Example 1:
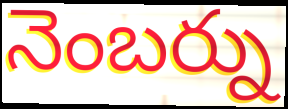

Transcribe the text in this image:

నెంబర్ను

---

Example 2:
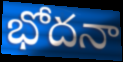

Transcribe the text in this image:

భోదనా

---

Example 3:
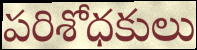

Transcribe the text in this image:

పరిశోధకులు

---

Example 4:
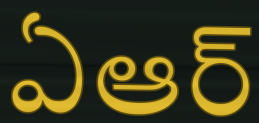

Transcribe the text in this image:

ఏఆర్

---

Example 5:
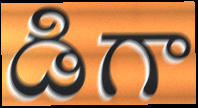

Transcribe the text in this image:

డిగా